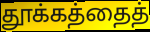
தூக்கத்தைத்